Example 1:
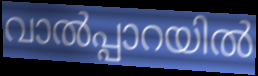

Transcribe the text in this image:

വാൽപ്പാറയിൽ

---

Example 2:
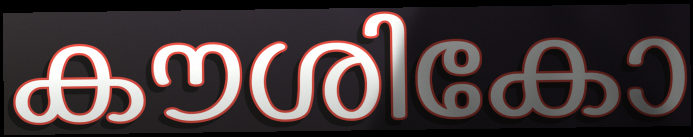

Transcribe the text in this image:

കൗശികോ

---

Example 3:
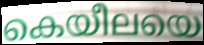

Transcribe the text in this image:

കെയീലയെ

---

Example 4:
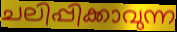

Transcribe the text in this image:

ചലിപ്പിക്കാവുന്ന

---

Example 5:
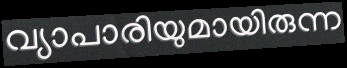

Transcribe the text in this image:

വ്യാപാരിയുമായിരുന്ന